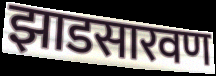
झाडसारवण